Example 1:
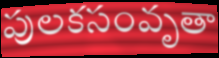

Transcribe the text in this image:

పులకసంవృతా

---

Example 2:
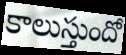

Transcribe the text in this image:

కాలుస్తుందో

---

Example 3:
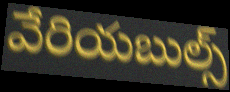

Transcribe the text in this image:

వేరియబుల్స్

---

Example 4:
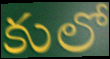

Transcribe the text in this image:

కులో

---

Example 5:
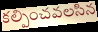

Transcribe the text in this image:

కల్పించవలసిన